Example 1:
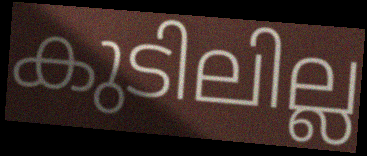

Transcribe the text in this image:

കുടിലില്ല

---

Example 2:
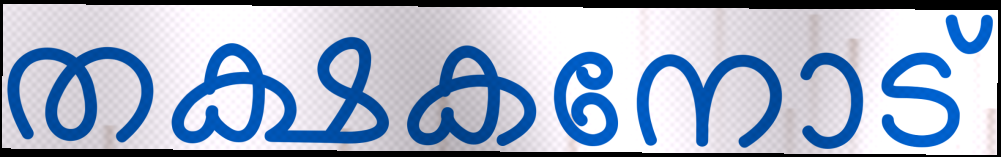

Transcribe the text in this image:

തക്ഷകനോട്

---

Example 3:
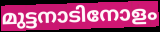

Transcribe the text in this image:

മുട്ടനാടിനോളം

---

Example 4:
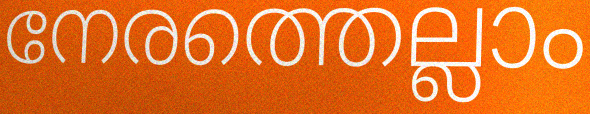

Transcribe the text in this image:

നേരത്തെല്ലാം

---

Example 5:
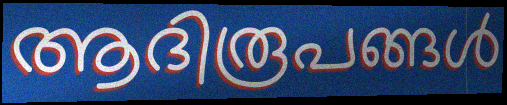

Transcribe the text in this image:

ആദിരൂപങ്ങൾ